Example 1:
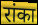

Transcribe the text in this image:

रांका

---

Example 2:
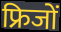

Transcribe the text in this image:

फ्रिजों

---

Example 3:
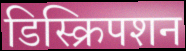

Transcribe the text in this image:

डिस्क्रिपशन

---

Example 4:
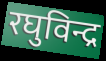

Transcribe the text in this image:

रघुविन्द्र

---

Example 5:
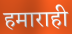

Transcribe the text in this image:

हमाराही